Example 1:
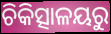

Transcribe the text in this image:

ଚିକିତ୍ସାଳୟରୁ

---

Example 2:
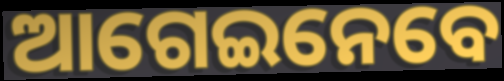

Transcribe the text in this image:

ଆଗେଇନେବେ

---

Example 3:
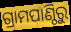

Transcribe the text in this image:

ଗ୍ରାମପାଣ୍ଠିରୁ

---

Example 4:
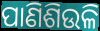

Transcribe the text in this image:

ପାଣିଶିଉଳି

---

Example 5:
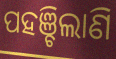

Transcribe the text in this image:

ପହଞ୍ଚିଲାଣି